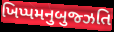
ખિપ્પમનુબુજ્ઝતિ